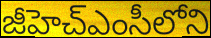
జీహెచ్ఎంసీలోని